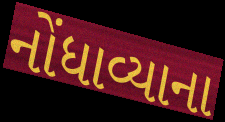
નોંધાવ્યાના